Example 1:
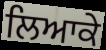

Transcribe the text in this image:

ਲਿਆਕੇ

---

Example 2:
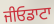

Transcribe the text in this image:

ਜੀਓਡਾਟਾ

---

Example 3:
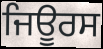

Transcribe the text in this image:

ਜਿਊਰਸ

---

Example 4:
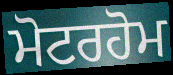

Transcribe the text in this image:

ਮੋਟਰਹੋਮ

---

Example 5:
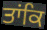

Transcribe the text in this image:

ਤਾਂਕਿ